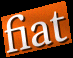
fiat